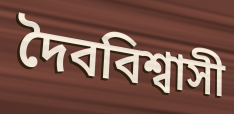
দৈববিশ্বাসী